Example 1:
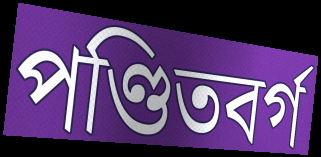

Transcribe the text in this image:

পণ্ডিতবর্গ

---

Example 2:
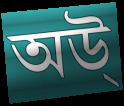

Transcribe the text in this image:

অউ্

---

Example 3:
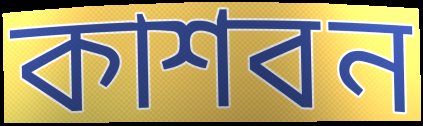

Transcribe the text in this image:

কাশবন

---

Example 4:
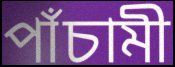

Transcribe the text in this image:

পাঁচামী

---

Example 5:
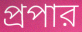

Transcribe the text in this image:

প্রপার